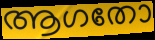
ആഗതോ